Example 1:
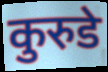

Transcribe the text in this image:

कुरुडे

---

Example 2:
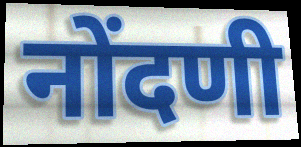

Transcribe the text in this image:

नोंदणी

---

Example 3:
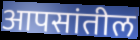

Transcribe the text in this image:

आपसांतील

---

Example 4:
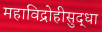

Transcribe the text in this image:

महाविद्रोहीसुद्धा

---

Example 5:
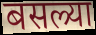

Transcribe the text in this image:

बसल्या